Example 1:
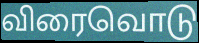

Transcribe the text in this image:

விரைவொடு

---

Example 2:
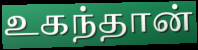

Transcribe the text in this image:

உகந்தான்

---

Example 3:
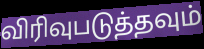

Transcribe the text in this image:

விரிவுபடுத்தவும்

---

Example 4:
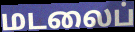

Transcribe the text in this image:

மடலைப்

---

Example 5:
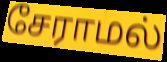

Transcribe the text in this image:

சேராமல்